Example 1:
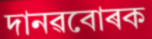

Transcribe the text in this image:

দানৱবোৰক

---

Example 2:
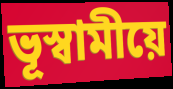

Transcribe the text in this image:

ভূস্বামীয়ে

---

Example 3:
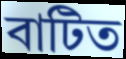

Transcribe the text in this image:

বাটিত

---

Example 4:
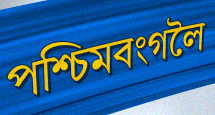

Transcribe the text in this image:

পশ্চিমবংগলৈ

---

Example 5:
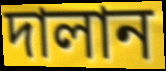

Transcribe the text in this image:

দালান